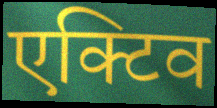
एक्टिव